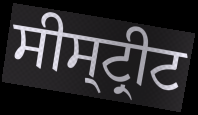
ਸੀਸ੍ਟ੍ਰੀਟ